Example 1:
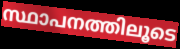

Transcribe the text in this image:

സ്ഥാപനത്തിലൂടെ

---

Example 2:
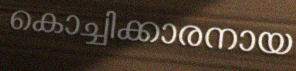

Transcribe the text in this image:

കൊച്ചിക്കാരനായ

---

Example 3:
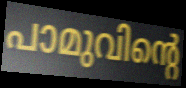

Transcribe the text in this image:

പാമുവിന്റെ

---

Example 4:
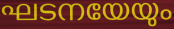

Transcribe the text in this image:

ഘടനയേയും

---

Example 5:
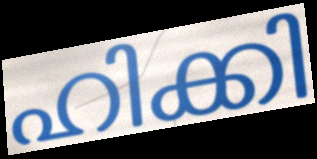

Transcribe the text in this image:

ഹിക്കി